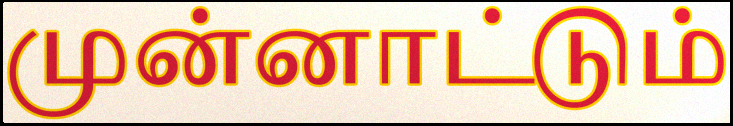
முன்னாட்டும்